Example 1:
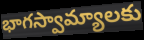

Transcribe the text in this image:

భాగస్వామ్యాలకు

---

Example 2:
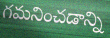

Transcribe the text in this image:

గమనించడాన్ని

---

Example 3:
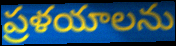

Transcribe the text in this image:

ప్రళయాలను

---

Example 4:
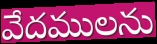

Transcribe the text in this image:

వేదములను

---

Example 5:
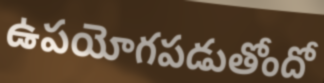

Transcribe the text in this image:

ఉపయోగపడుతోందో